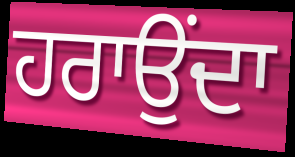
ਹਰਾਉਂਦਾ